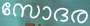
സോദര